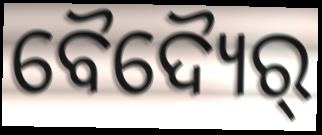
ବୈଦ୍ୟୈର୍